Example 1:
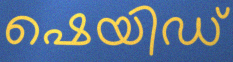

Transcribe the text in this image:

ഷെയിഡ്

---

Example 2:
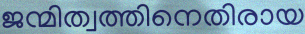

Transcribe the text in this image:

ജന്മിത്വത്തിനെതിരായ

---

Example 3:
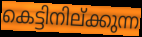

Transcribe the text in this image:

കെട്ടിനില്ക്കുന്ന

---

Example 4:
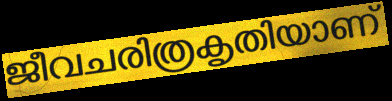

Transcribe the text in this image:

ജീവചരിത്രകൃതിയാണ്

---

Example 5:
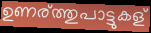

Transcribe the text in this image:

ഉണര്ത്തുപാട്ടുകള്